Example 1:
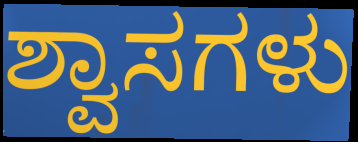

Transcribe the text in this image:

ಶ್ವಾಸಗಳು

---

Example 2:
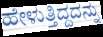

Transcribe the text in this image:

ಹೇಳುತ್ತಿದ್ದದನ್ನು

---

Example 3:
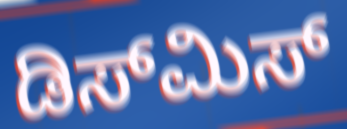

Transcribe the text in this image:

ಡಿಸ್‌ಮಿಸ್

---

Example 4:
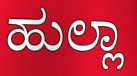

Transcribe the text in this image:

ಹುಲ್ಲಾ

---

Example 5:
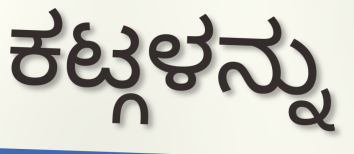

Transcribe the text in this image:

ಕಟ್ಗಳನ್ನು